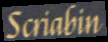
Scriabin